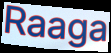
Raaga